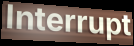
Interrupt